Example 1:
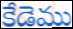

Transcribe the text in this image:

కేడెము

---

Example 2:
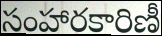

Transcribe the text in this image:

సంహారకారిణీ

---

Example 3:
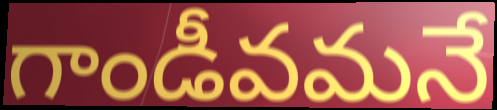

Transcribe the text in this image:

గాండీవమనే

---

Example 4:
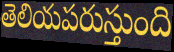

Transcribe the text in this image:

తెలియపరుస్తుంది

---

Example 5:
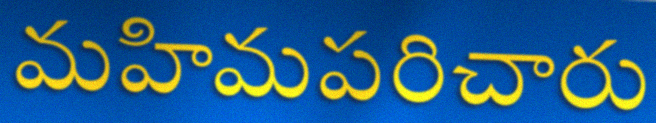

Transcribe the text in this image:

మహిమపరిచారు